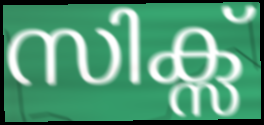
സിക്സ്